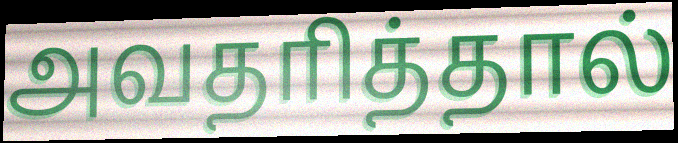
அவதரித்தால்